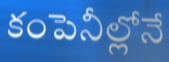
కంపెనీల్లోనే